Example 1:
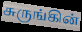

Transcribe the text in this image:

சுருங்கின்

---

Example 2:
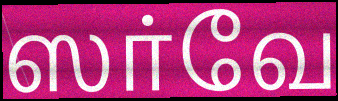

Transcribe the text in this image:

ஸர்வே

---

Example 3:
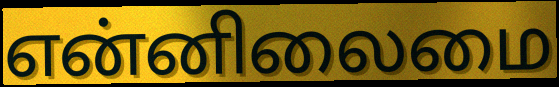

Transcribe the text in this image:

என்னிலைமை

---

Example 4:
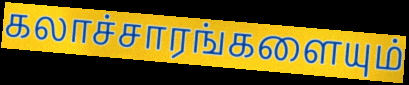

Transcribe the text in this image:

கலாச்சாரங்களையும்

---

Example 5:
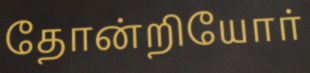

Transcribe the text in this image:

தோன்றியோர்